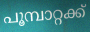
പൂമ്പാറ്റക്ക്